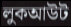
লুকআউট